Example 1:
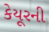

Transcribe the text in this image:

કેયૂરની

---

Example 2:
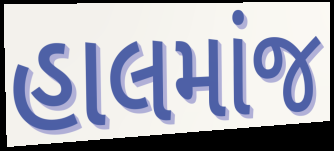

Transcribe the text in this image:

હાલમાંજ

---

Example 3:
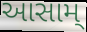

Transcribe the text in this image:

આસામ્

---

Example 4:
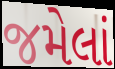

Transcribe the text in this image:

જમેલાં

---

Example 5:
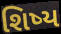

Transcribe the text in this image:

શિષ્ય